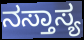
ನಸ್ತಾಸ್ಯ